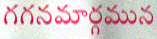
గగనమార్గమున